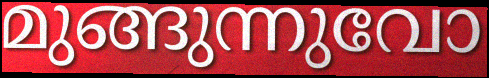
മുങ്ങുന്നുവോ